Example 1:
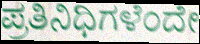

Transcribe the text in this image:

ಪ್ರತಿನಿಧಿಗಳೆಂದೇ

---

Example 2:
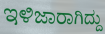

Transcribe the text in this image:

ಇಳಿಜಾರಾಗಿದ್ದು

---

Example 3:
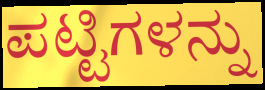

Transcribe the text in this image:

ಪಟ್ಟಿಗಳನ್ನು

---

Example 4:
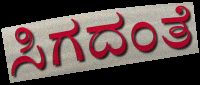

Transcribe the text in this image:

ಸಿಗದಂತೆ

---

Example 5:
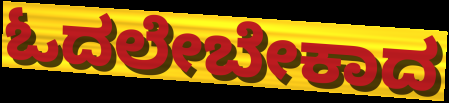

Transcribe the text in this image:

ಓದಲೇಬೇಕಾದ